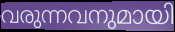
വരുന്നവനുമായി